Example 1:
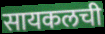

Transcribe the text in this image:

सायकलची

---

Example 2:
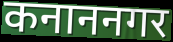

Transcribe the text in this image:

कनाननगर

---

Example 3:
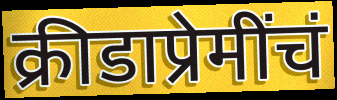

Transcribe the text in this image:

क्रीडाप्रेमींचं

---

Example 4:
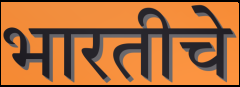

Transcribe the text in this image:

भारतीचे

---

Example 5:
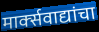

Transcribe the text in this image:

मार्क्‍सवाद्यांचा